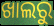
ଖାଲରୁ